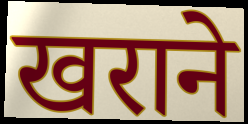
खराने